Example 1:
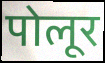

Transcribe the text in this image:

पोलूर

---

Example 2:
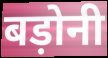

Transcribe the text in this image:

बड़ोनी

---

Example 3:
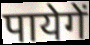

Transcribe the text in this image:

पायेगें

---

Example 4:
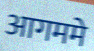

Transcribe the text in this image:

आगममे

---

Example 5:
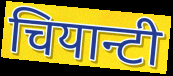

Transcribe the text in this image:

चियान्टी